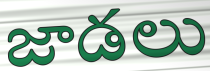
జాడలు